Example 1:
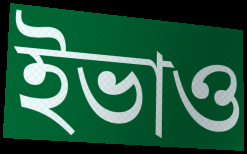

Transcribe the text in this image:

ইভাও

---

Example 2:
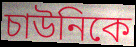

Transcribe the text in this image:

চাউনিকে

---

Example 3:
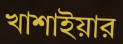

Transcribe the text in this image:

খাশাইয়ার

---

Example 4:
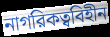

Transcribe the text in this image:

নাগরিকত্ববিহীন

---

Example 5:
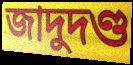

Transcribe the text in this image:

জাদুদণ্ড